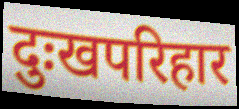
दुःखपरिहार